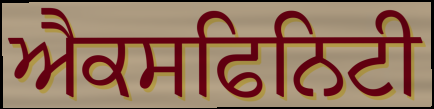
ਐਕਸਫਿਨਿਟੀ